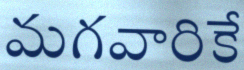
మగవారికే